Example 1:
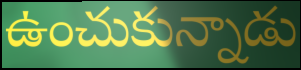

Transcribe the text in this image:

ఉంచుకున్నాడు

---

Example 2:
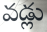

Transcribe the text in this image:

వడ్లు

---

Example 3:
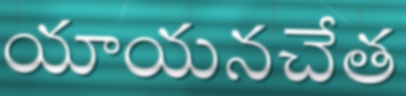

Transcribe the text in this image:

యాయనచేత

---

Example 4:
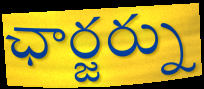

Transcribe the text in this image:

ఛార్జర్ను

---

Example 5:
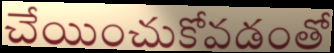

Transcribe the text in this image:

చేయించుకోవడంతో